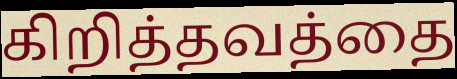
கிறித்தவத்தை